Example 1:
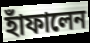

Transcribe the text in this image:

হাঁফালেন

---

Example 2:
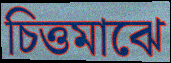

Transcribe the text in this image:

চিত্তমাঝে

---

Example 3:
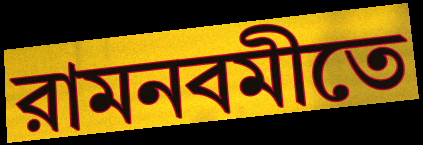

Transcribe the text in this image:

রামনবমীতে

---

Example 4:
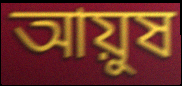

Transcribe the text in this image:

আয়ুষ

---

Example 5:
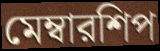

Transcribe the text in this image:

মেম্বারশিপ